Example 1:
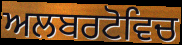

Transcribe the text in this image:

ਅਲਬਰਟੋਵਿਚ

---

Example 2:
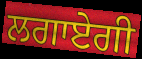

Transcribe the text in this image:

ਲਗਾਏਗੀ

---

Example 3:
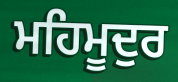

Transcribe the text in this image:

ਮਹਿਮੂਦੁਰ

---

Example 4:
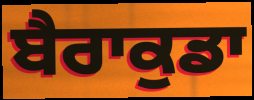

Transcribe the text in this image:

ਬੈਰਾਕੁਡਾ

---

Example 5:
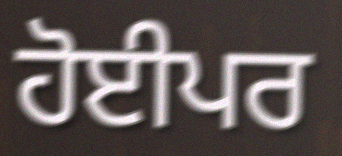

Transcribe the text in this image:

ਹੋਈਪਰ